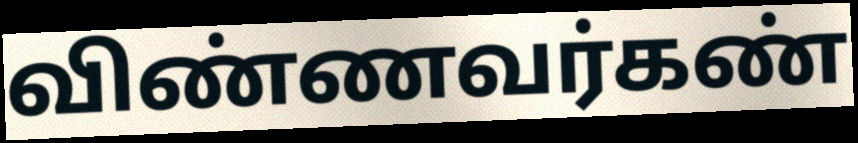
விண்ணவர்கண்